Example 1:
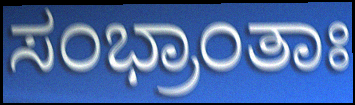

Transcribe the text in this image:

ಸಂಭ್ರಾಂತಾಃ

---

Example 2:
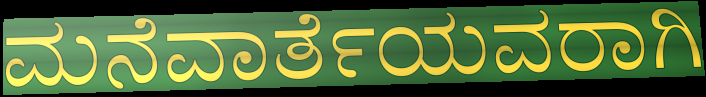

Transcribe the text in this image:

ಮನೆವಾರ್ತೆಯವರಾಗಿ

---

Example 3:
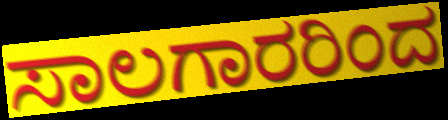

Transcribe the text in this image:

ಸಾಲಗಾರರಿಂದ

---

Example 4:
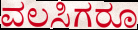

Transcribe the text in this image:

ವಲಸಿಗರೂ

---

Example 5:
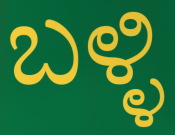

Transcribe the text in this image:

ಬಳ್ಳಿ